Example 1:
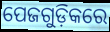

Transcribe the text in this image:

ପେଜଗୁଡ଼ିକରେ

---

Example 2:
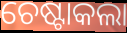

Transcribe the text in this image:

ଚେଷ୍ଟାକଲା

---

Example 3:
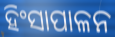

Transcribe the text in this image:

ହିଂସାପାଳନ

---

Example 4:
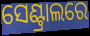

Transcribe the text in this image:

ସେଣ୍ଟ୍ରାଲରେ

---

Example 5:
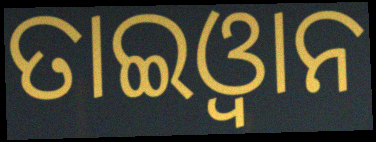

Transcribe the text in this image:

ତାଇଓ୍ୱାନ